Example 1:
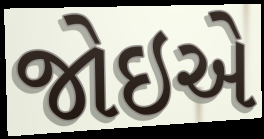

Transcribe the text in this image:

જોઇએ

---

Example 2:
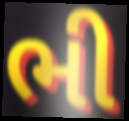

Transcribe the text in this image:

ભી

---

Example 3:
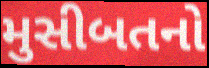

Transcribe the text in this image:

મુસીબતનો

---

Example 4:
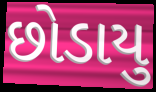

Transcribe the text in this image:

છોડાયુ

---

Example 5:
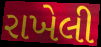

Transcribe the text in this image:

રાખેલી